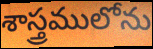
శాస్త్రములోను